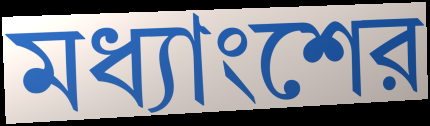
মধ্যাংশের